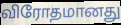
விரோதமானது